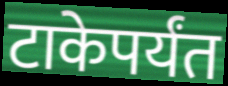
टाकेपर्यंत